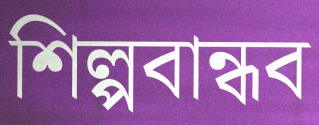
শিল্পবান্ধব